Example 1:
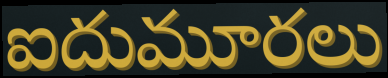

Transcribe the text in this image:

ఐదుమూరలు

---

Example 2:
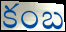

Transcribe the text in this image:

కంబ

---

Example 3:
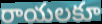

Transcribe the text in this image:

రాయలకూ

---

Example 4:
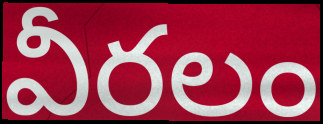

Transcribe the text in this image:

వీరలం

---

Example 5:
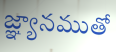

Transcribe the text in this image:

జ్ఞ్యానముతో